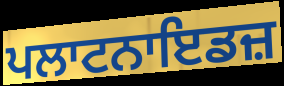
ਪਲਾਟਨਾਇਡਜ਼